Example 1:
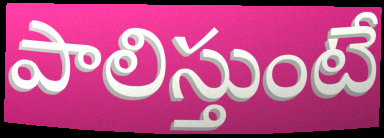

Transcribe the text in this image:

పాలిస్తుంటే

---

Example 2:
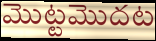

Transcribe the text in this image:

మొట్టమొదట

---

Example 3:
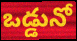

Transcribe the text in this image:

ఒడ్డునో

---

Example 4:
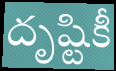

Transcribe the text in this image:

దృష్టికీ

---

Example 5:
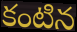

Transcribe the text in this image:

కంటిన